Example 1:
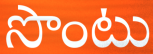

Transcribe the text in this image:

సొంటు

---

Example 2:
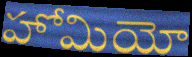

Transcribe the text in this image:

హోమియో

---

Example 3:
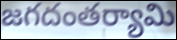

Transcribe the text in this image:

జగదంతర్యామి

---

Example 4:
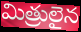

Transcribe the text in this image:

మిత్రులైన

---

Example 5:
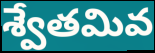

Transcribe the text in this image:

శ్వేతమివ